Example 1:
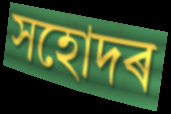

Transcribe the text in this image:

সহোদৰ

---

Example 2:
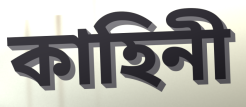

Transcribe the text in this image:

কাহিনী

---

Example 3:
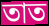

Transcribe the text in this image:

তাত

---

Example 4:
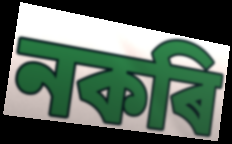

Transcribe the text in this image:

নকৰি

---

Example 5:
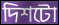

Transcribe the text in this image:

দিশটো